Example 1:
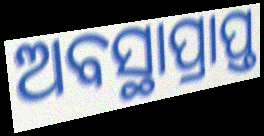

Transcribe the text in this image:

ଅବସ୍ଥାପ୍ରାପ୍ତ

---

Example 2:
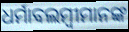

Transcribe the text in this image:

ଧର୍ମାବଲମ୍ବୀମାନଙ୍କ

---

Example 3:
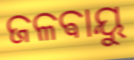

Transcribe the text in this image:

ଜଳଵାୟୁ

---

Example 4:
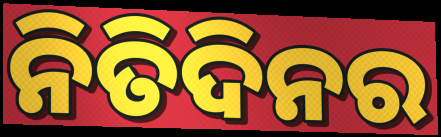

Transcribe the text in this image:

ନିତିଦିନର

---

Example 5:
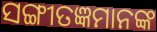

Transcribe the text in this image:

ସଙ୍ଗୀତଜ୍ଞମାନଙ୍କ